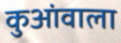
कुआंवाला